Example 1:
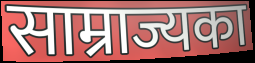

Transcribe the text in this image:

साम्राज्यका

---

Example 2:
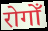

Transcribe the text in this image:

रोगोँ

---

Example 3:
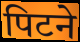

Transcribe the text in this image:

पिटने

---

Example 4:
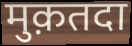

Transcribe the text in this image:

मुक़तदा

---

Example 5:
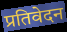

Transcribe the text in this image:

प्रतिवेदन